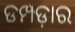
ଡମ୍ପଡ଼ାର